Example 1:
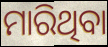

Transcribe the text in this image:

ମାରିଥିବା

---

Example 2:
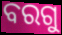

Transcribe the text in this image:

ବରଗୁ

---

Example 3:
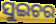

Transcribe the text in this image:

ସୁଇଚର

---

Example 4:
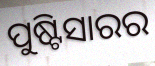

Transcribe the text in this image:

ପୁଷ୍ଟିସାରର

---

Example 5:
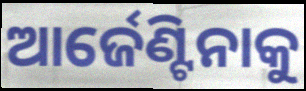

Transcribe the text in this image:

ଆର୍ଜେଣ୍ଟିନାକୁ